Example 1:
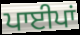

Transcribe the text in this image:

ਪਾਈਪਾਂ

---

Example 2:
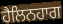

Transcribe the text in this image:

ਹੈਲਿਨਹਾਗ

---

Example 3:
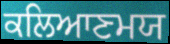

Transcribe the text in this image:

ਕਲਿਆਣਮਯ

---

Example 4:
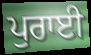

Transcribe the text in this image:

ਪੁਰਾਈ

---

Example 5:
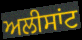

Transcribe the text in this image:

ਅਲੀਸਾਂਟ